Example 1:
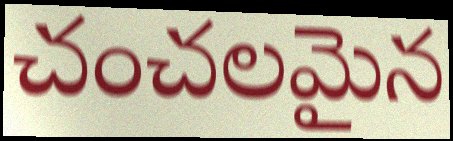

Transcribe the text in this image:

చంచలమైన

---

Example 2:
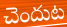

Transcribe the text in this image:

చెందుట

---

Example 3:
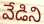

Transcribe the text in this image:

వేడిని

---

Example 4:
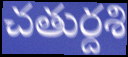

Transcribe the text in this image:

చతుర్దశి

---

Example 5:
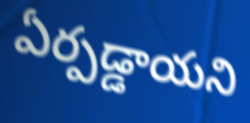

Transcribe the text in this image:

ఏర్పడ్డాయని